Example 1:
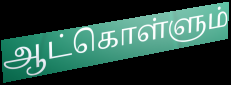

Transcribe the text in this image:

ஆட்கொள்ளும்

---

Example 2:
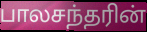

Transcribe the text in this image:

பாலசந்தரின்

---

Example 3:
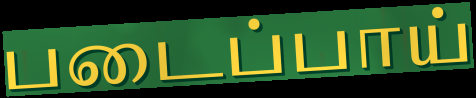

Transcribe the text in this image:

படைப்பாய்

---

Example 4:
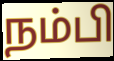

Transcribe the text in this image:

நம்பி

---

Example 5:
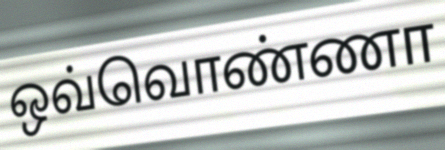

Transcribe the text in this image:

ஒவ்வொண்ணா